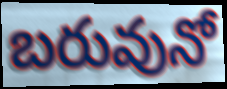
బరువునో